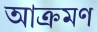
আক্রমণ